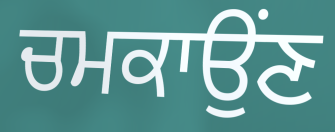
ਚਮਕਾਉਂਣ